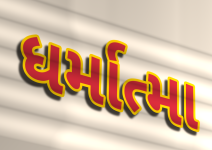
ધર્માત્મા